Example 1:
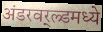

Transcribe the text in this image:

अंडरवर्ल्डमध्ये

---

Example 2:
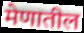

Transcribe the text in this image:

मेणातील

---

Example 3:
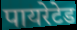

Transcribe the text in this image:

पायरेटेड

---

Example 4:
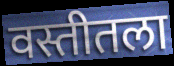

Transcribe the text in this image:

वस्तीतला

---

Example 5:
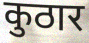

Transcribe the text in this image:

कुठार